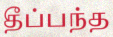
தீப்பந்த